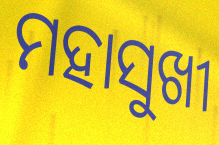
ମହାସୁଖୀ